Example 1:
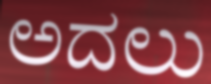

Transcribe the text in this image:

ಅದಲು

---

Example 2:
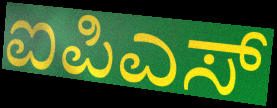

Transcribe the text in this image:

ಐಪಿಎಸ್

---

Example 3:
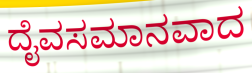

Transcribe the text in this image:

ದೈವಸಮಾನವಾದ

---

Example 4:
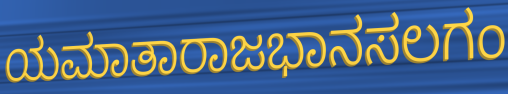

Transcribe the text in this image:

ಯಮಾತಾರಾಜಭಾನಸಲಗಂ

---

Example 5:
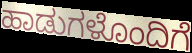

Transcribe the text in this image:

ಹಾಡುಗಳೊಂದಿಗೆ